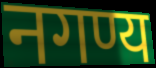
नगण्य